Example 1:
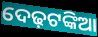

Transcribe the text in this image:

ଦେଢ଼ଟଙ୍କିଆ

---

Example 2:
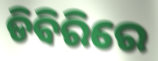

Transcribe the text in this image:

ଡିବିରିରେ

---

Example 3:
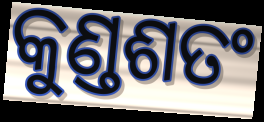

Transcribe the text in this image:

କୁଣ୍ଡଶତଂ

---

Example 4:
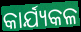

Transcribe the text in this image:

କାର୍ଯ୍ୟକଳ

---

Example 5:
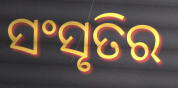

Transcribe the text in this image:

ସଂସୃତିର